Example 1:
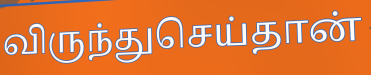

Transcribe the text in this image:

விருந்துசெய்தான்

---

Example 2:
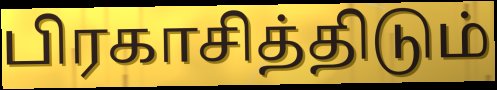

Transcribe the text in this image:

பிரகாசித்திடும்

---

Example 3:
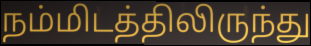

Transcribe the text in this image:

நம்மிடத்திலிருந்து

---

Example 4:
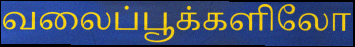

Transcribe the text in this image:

வலைப்பூக்களிலோ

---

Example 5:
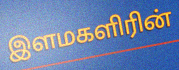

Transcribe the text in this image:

இளமகளிரின்